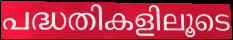
പദ്ധതികളിലൂടെ